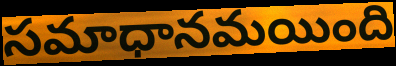
సమాధానమయింది